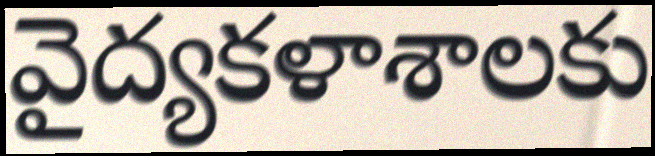
వైద్యకళాశాలకు